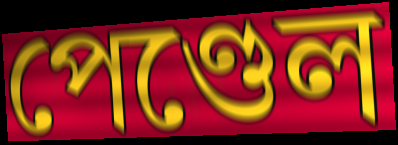
পেণ্ডেল